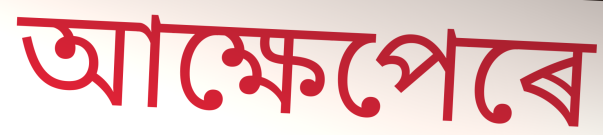
আক্ষেপেৰে